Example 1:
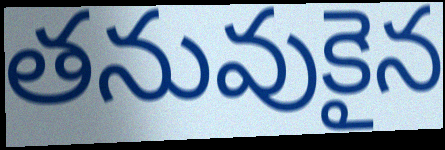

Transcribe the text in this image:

తనువుకైన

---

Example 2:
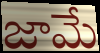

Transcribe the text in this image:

జామే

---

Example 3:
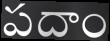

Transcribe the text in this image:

పదాం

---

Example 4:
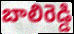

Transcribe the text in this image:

బాలిరెడ్డి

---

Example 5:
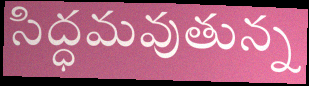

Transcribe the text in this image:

సిద్ధమవుతున్న